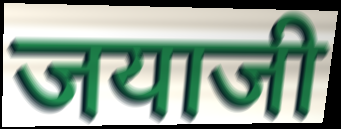
जयाजी